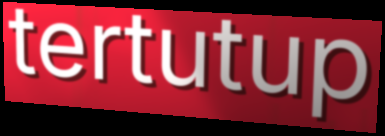
tertutup